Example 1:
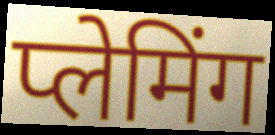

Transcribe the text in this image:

प्लेमिंग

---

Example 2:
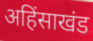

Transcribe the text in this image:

अहिंसाखंड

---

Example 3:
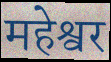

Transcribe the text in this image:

महेश्वर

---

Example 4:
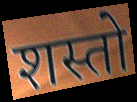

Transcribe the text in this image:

शस्तो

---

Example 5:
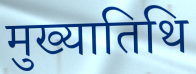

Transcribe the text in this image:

मुख्यातिथि